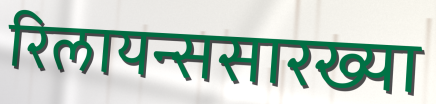
रिलायन्ससारख्या